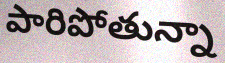
పారిపోతున్నా